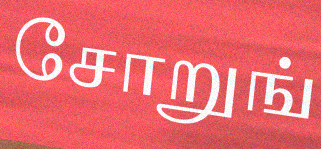
சோறுங்